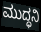
ಮುದ್ಧನಿ